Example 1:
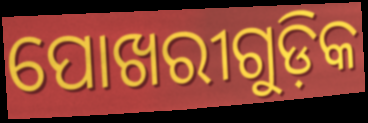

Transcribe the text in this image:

ପୋଖରୀଗୁଡ଼ିକ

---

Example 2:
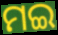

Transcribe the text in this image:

ମଇ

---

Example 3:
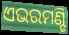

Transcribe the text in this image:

ଏଭରମଣ୍ଡି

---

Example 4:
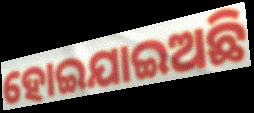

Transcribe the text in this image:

ହୋଇଯାଇଅଛି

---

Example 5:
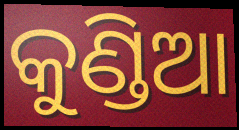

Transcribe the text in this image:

କୁଣ୍ଡିଆ